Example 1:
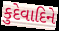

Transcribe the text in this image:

કુદેવાદિને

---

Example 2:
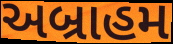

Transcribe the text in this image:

અબ્રાહમ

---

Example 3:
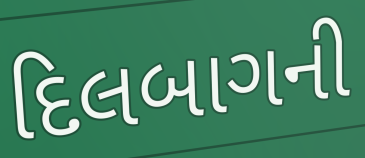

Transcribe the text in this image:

દિલબાગની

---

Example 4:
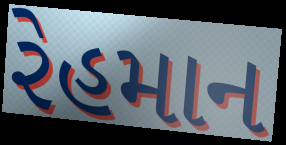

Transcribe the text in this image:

રેહમાન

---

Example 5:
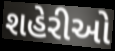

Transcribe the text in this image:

શહેરીઓ